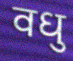
वधु